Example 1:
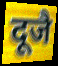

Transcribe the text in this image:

दूजै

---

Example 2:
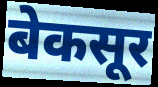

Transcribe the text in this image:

बेकसूर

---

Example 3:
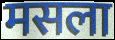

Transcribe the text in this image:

मसला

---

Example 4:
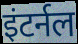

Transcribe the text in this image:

इंटर्नल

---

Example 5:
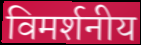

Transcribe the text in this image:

विमर्शनीय